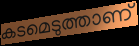
കടമെടുത്താണ്